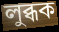
লুব্ধক